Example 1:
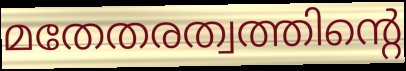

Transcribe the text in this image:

മതേതരത്വത്തിന്റെ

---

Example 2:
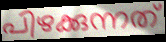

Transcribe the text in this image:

പിഴക്കുന്നത്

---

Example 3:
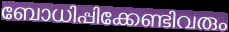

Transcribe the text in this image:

ബോധിപ്പിക്കേണ്ടിവരും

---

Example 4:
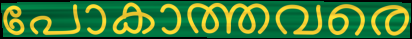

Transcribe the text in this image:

പോകാത്തവരെ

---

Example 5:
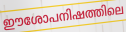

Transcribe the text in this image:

ഈശോപനിഷത്തിലെ